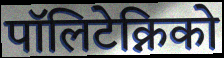
पॉलिटेक्निको